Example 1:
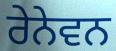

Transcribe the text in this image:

ਰੇਨੇਵਨ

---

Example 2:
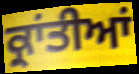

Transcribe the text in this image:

ਕ੍ਰਾਂਤੀਆਂ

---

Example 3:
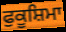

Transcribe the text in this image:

ਫੁਕੂਸ਼ਿਮਾ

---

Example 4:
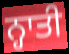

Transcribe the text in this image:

ਨ੍ਹਾਤੀ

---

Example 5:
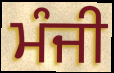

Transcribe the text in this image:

ਮੰਜੀ